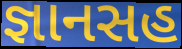
જ્ઞાનસહ